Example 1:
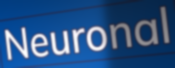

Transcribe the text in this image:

Neuronal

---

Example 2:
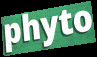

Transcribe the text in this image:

phyto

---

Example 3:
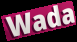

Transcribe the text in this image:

Wada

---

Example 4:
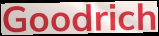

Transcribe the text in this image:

Goodrich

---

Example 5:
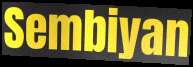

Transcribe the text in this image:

Sembiyan